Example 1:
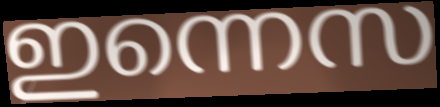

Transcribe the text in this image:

ഇന്നെസ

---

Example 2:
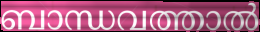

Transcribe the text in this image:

ബാന്ധവത്താൽ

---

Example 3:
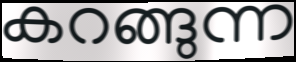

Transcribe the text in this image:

കറങ്ങുന്ന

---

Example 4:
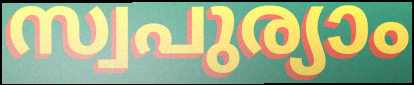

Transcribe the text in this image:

സ്വപുര്യാം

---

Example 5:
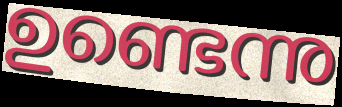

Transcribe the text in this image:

ഉണ്ടെന്നു